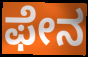
ಫೇನ